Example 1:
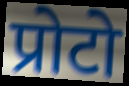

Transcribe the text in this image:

प्रोटो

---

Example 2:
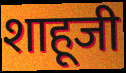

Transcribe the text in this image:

शाहूजी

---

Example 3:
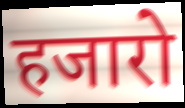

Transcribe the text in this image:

हजारो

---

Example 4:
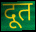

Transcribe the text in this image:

दूत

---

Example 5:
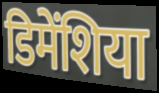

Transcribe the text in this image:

डिमेंशिया